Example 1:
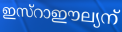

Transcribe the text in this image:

ഇസ്റാഈല്യന്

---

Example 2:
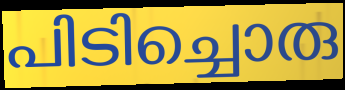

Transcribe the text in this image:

പിടിച്ചൊരു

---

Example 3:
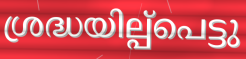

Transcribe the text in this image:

ശ്രദ്ധയില്പ്പെട്ടു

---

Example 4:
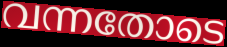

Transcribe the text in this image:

വന്നതോടെ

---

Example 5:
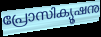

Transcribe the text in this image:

പ്രോസിക്യൂഷനു